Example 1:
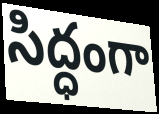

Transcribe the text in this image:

సిద్ధంగా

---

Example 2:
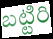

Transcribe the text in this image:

బట్టిరి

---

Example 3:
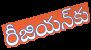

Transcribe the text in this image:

రీజియన్‌కు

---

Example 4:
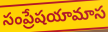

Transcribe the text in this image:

సంప్రేషయామాస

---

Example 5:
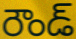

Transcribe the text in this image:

రౌండ్